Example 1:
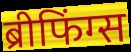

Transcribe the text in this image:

ब्रीफिंग्स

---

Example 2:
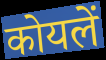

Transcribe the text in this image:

कोयलें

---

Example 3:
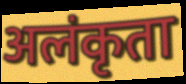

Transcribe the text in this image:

अलंकृता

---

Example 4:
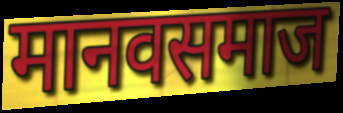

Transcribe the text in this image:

मानवसमाज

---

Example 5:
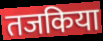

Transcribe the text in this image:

तजकिया